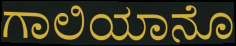
ಗಾಲಿಯಾನೊ